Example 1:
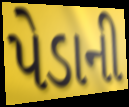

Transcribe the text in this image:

પેડાની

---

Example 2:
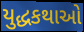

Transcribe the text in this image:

યુદ્ધકથાઓ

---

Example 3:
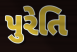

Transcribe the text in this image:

પુરેતિ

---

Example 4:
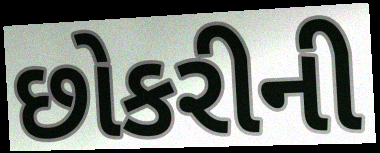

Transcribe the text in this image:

છોકરીની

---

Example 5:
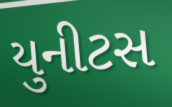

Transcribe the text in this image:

યુનીટસ